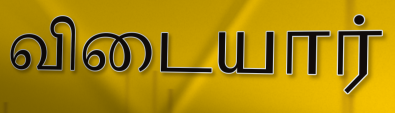
விடையார்